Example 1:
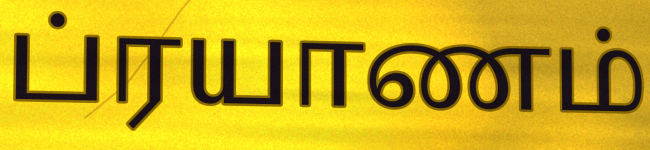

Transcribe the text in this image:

ப்ரயாணம்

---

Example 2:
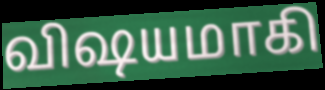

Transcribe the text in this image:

விஷயமாகி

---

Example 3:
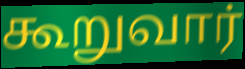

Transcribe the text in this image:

கூறுவார்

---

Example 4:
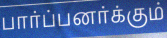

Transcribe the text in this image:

பார்ப்பனர்க்கும்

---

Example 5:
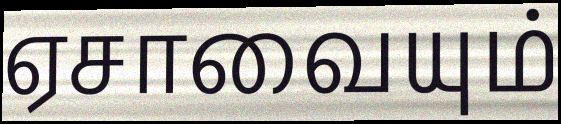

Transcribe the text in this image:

ஏசாவையும்